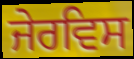
ਜੇਰਵਿਸ